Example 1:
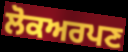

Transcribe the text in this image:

ਲੋਕਅਰਪਣ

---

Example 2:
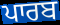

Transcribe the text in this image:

ਪਾਰਬ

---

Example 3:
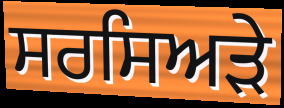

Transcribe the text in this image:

ਸਰਸਿਅੜੇ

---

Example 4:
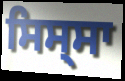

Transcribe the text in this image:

ਸਿਸ੍ਸਾ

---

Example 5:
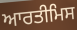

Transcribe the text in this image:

ਆਰਤੀਮਿਸ